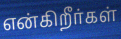
என்கிறீர்கள்